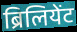
ब्रिलियेंट